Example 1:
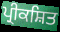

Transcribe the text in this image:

ਪ੍ਰੀਕਸ਼ਿਤ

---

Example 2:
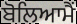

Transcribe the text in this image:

ਬੋਲਿਆਮੈਂ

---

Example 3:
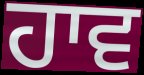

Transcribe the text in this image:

ਹਾਵ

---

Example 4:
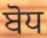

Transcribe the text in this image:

ਬੋਧ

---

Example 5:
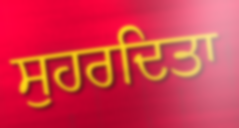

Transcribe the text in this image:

ਸੁਹਰਦਿਤਾ